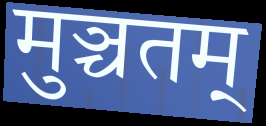
मुञ्चतम्